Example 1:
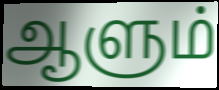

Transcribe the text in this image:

ஆளும்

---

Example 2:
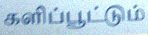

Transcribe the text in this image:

களிப்பூட்டும்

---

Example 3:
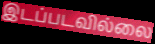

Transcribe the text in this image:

இடப்படவில்லை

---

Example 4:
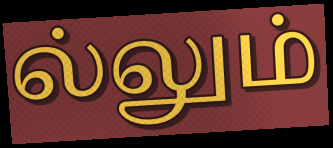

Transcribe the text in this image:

ல்லும்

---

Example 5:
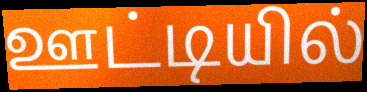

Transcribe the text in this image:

ஊட்டியில்